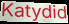
Katydid